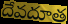
దేవదూత